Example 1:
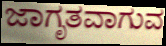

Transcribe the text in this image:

ಜಾಗೃತವಾಗುವ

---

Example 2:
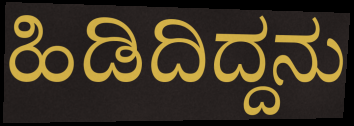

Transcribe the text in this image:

ಹಿಡಿದಿದ್ದನು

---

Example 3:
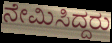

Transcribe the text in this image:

ನೇಮಿಸಿದ್ದರು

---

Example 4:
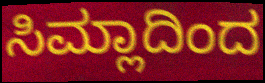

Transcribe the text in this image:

ಸಿಮ್ಲಾದಿಂದ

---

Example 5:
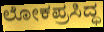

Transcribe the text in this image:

ಲೋಕಪ್ರಸಿದ್ಧ